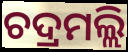
ଚଦ୍ରମଲ୍ଲି